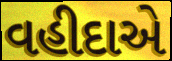
વહીદાએ